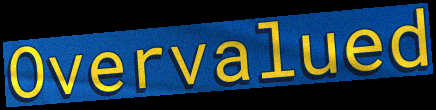
Overvalued